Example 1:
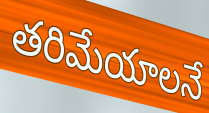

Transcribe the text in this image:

తరిమేయాలనే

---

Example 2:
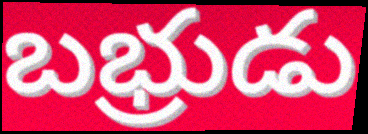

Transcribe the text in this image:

బభ్రుడు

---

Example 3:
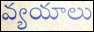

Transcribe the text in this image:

వ్యయాలు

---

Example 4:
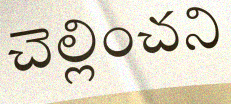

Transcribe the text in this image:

చెల్లించని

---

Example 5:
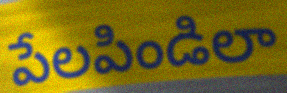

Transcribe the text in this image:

పేలపిండిలా